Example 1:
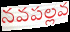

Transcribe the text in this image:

నవపల్లవ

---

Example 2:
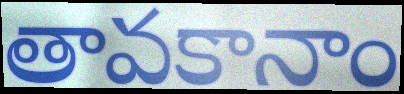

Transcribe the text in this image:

తావకానాం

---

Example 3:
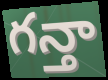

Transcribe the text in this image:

గన్తా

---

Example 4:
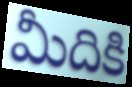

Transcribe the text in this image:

మీదికి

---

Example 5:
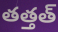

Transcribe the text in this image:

తత్తత్